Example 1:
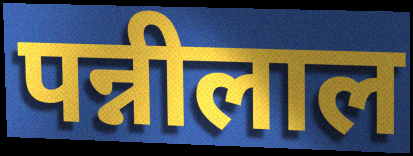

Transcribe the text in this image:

पन्नीलाल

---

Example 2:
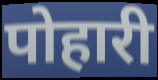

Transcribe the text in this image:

पोहारी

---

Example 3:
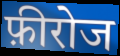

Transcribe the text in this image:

फ़ीरोज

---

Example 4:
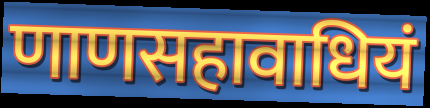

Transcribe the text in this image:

णाणसहावाधियं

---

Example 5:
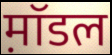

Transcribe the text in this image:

म़ॉडल